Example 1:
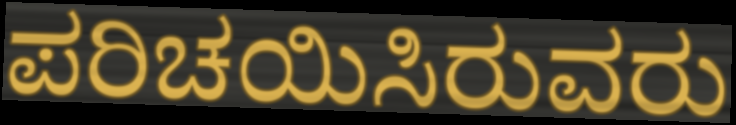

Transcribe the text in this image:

ಪರಿಚಯಿಸಿರುವರು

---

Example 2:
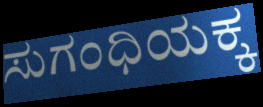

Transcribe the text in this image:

ಸುಗಂಧಿಯಕ್ಕ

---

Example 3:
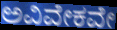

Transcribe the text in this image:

ಅವಿವೇಕವೇ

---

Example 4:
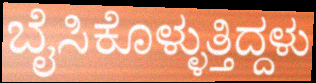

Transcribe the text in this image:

ಬೈಸಿಕೊಳ್ಳುತ್ತಿದ್ದಳು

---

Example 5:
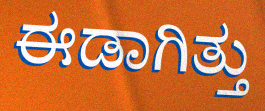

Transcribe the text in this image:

ಈಡಾಗಿತ್ತು